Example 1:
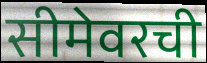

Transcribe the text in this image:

सीमेवरची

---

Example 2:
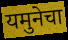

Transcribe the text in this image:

यमुनेचा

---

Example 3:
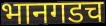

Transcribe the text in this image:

भानगडच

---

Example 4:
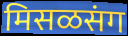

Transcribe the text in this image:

मिसळसंग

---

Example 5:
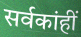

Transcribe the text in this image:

सर्वकांहीं